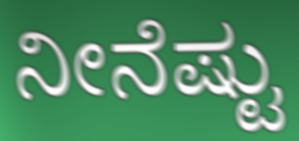
ನೀನೆಷ್ಟು